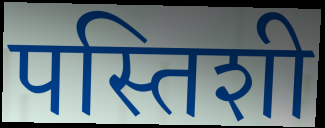
पस्तिशी